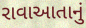
રાવાઆતાનું